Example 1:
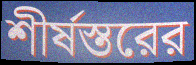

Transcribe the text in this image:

শীর্ষস্তরের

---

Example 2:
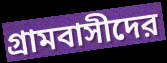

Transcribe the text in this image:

গ্রামবাসীদের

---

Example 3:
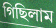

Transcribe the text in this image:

গিছিলাম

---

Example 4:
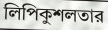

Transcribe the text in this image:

লিপিকুশলতার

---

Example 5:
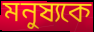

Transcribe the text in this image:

মনুষ্যকে